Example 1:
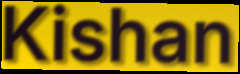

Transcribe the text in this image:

Kishan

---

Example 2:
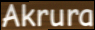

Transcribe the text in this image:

Akrura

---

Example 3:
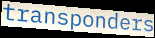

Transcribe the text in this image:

transponders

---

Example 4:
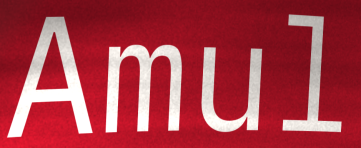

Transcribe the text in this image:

Amul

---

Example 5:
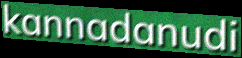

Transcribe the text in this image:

kannadanudi